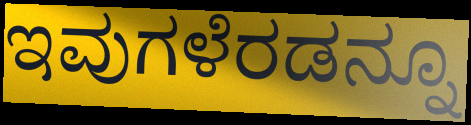
ಇವುಗಳೆರಡನ್ನೂ